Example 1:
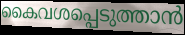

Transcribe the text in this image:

കൈവശപ്പെടുത്താൻ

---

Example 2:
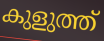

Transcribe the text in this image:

കുളുത്ത്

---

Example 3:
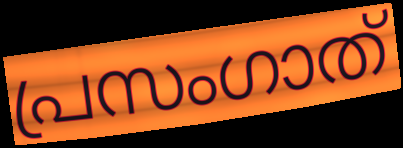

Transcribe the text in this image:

പ്രസംഗാത്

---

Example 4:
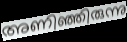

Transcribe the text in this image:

അണിഞ്ഞിരുന്നു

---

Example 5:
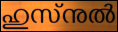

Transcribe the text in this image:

ഹുസ്നുൽ